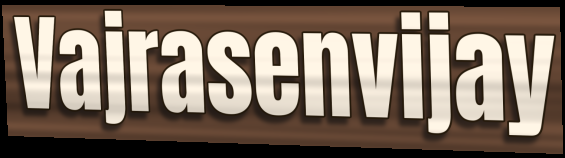
Vajrasenvijay